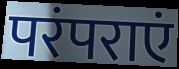
परंपराएं